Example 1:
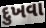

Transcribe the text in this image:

દુખવા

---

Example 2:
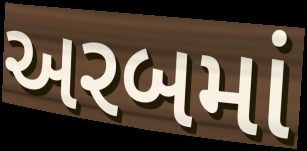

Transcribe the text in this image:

અરબમાં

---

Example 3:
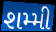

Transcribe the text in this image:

શમ્મી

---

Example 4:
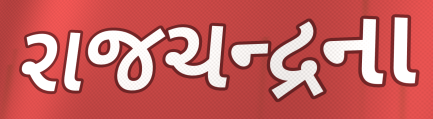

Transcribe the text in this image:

રાજચન્દ્રના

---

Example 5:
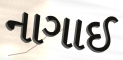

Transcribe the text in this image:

નાગાઈ